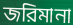
জরিমানা